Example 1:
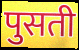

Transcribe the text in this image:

पुसती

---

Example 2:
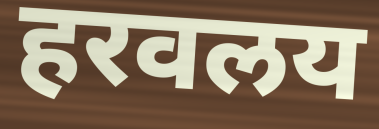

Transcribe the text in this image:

हरवलय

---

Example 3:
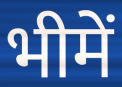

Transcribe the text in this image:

भीमें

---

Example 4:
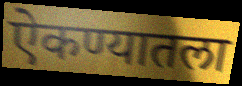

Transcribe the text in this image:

ऐकण्यातला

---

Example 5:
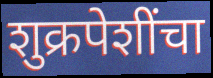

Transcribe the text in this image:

शुक्रपेशींचा